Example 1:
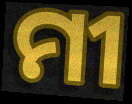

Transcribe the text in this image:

ମୀ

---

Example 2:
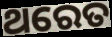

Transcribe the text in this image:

ଥରେତ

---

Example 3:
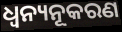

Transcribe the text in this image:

ଧ୍ୱନ୍ୟନୂକରଣ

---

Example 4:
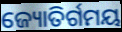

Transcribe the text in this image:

ଜ୍ୟୋତିର୍ଗମୟ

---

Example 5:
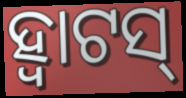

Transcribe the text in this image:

ହ୍ୱାଟସ୍